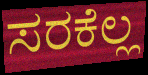
ಸರಕೆಲ್ಲ